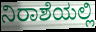
ನಿರಾಶೆಯಲ್ಲಿ